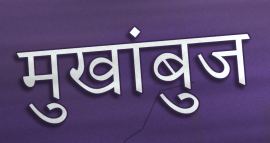
मुखांबुज